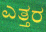
ಎತ್ತರ